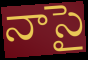
నాసై